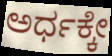
ಅರ್ಧಕ್ಕೇ